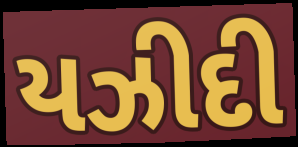
યઝીદી